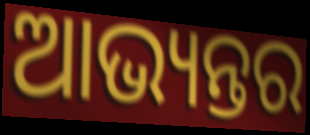
ଆଭ୍ୟନ୍ତର